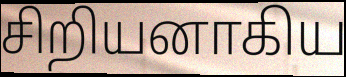
சிறியனாகிய